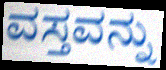
ವಸ್ತವನ್ನು